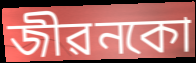
জীৱনকো